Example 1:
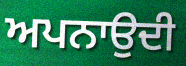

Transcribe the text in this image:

ਅਪਨਾਉਦੀ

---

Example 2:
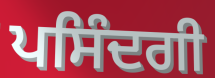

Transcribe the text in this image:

ਪਸਿੰਦਗੀ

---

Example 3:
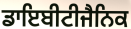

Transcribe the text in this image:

ਡਾਇਬੀਟੀਜੈਨਿਕ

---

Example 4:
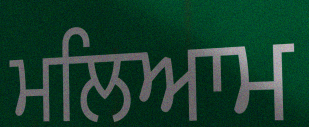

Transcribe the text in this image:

ਮਲਿਆਮ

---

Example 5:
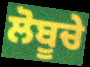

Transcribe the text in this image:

ਲੋਬੂਚੇ